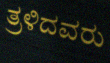
ತ್ರಳಿದವರು